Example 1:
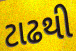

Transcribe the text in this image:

ટાઢથી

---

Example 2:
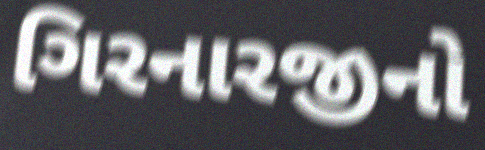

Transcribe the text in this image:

ગિરનારજીનો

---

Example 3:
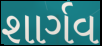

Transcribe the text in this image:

શાર્ગવ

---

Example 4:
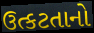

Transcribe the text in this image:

ઉત્કટતાનો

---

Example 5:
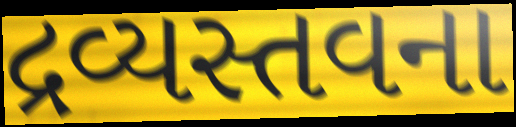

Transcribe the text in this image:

દ્રવ્યસ્તવના